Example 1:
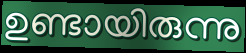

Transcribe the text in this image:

ഉണ്ടായിരുന്നു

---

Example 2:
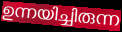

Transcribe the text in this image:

ഉന്നയിച്ചിരുന്ന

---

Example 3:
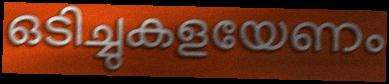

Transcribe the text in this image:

ഒടിച്ചുകളയേണം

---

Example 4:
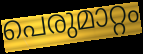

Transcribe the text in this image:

പെരുമാറ്റം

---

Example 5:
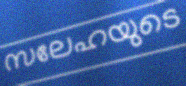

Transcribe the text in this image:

സലേഹയുടെ